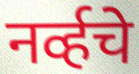
नर्व्हचे